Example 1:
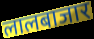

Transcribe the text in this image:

लालबाजार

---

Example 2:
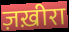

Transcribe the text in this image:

ज़ख़ीरा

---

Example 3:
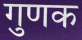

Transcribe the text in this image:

गुणक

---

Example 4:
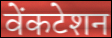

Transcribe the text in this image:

वेंकटेशन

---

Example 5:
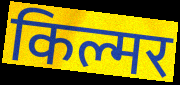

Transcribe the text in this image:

किल्मर